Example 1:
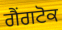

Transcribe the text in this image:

ਗੈਂਗਟੋਕ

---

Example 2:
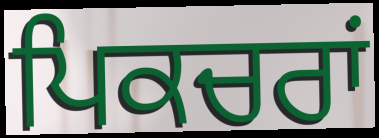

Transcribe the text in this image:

ਪਿਕਚਰਾਂ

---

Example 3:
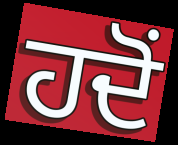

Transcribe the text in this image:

ਹਦੋਂ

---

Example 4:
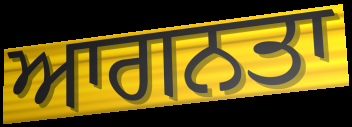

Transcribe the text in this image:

ਆਗਨਤਾ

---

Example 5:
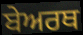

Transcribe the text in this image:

ਬੇਅਰਥ